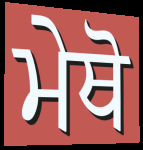
ਮੇਥੋ